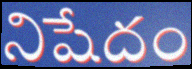
నిషేదం